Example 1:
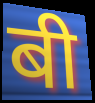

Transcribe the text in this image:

बी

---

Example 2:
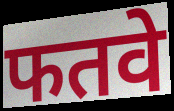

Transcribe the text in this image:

फतवे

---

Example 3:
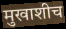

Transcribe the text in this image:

मुखाशीच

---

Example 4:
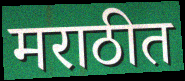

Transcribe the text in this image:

मराठीत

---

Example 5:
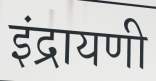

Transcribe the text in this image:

इंद्रायणी